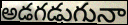
అడగడుగునా